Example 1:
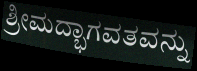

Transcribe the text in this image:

ಶ್ರೀಮದ್ಭಾಗವತವನ್ನು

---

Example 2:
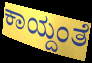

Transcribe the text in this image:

ಕಾಯ್ದಂತೆ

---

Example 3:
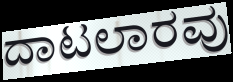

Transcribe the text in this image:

ದಾಟಲಾರವು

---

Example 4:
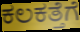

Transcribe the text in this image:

ಕಲಕತ್ತೆಗೆ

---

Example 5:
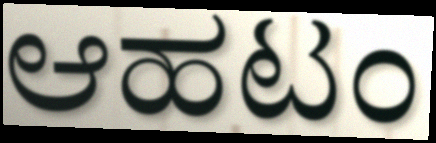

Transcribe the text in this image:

ಆಹಟಂ